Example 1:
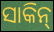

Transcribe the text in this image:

ସାକିନ୍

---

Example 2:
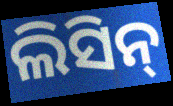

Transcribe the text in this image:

ଲିସିନ୍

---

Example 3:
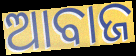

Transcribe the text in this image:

ଆବାଜ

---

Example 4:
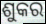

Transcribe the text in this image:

ଶୁକର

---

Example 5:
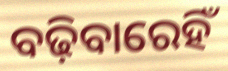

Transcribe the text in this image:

ବଢ଼ିବାରେହିଁ